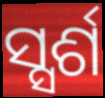
ସ୍ସର୍ଶ